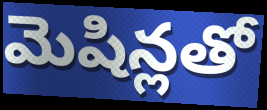
మెషిన్లతో